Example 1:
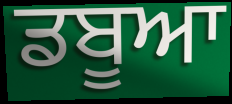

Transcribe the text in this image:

ਡਬੂਆ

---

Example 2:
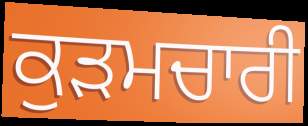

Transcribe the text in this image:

ਕੁੜਮਚਾਰੀ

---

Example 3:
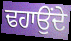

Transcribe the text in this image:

ਢਹਾਉਂਦੇ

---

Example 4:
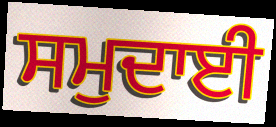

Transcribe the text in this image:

ਸਮੁਦਾਈ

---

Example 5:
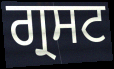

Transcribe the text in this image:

ਗ੍ਰਸਟ